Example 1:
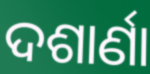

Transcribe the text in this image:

ଦଶାର୍ଣା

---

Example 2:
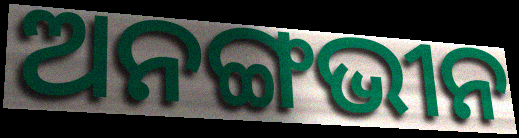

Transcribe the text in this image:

ଅନଙ୍ଗଭୀନ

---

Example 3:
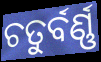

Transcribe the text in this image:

ଚତୁର୍ବର୍ଣ୍ଣ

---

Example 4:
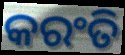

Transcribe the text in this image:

କରଂତି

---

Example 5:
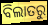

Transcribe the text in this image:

ବିଲାତରୁ